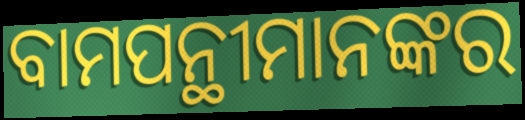
ବାମପନ୍ଥୀମାନଙ୍କର